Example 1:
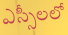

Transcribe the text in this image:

ఎస్సీలలో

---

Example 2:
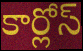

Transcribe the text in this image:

కార్లోస్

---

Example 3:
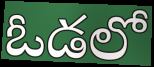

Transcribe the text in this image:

ఓడలో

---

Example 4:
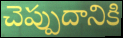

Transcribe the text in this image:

చెప్పుదానికి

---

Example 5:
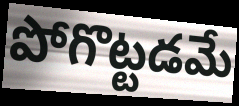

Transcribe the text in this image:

పోగొట్టడమే